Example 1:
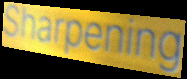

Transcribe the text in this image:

Sharpening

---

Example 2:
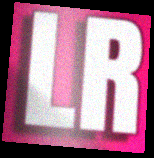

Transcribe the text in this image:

LR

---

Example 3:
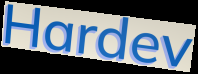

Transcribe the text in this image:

Hardev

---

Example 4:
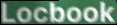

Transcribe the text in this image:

Locbook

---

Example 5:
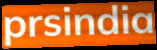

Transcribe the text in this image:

prsindia